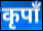
कृपाँ